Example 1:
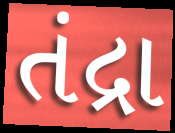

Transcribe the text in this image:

તંદ્રા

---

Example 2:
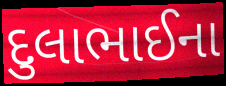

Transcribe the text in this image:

દુલાભાઈના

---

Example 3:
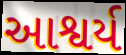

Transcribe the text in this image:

આશ્વર્ય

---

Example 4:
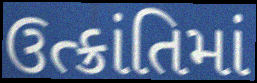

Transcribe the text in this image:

ઉત્ક્રાંતિમાં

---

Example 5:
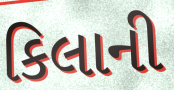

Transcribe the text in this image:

કિલાની